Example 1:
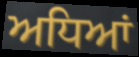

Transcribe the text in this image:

ਅਧਿਆਂ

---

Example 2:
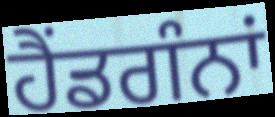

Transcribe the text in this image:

ਹੈਂਡਗੰਨਾਂ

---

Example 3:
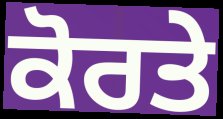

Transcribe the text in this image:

ਕੋਰਤੇ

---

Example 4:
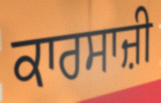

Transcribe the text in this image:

ਕਾਰਸਾਜ਼ੀ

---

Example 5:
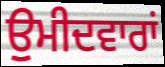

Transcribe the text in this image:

ਉੁਮੀਦਵਾਰਾਂ